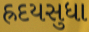
હ્રદયસુધા